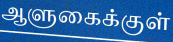
ஆளுகைக்குள்